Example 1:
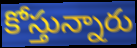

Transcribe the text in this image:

కోస్తున్నారు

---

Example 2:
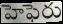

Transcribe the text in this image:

హెఫెరు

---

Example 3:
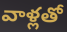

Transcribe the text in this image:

వాళ్లతో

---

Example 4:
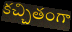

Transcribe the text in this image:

కచ్చితంగా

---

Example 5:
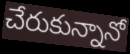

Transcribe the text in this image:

చేరుకున్నానో